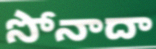
సోనాదా